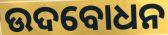
ଉଦବୋଧନ